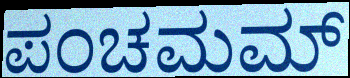
ಪಂಚಮಮ್